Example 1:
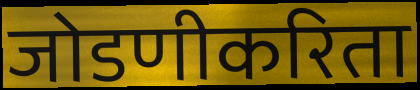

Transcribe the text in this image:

जोडणीकरिता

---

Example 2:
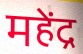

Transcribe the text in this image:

महेंद्र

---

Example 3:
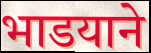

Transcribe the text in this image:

भाडयाने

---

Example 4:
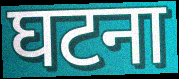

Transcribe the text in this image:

घटना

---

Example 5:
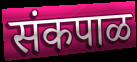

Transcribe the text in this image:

संकपाळ